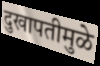
दुखापतीमुळे